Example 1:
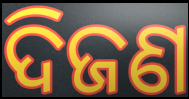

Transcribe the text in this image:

ଦିଜଣ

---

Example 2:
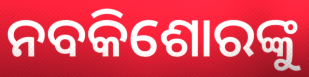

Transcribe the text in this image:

ନବକିଶୋରଙ୍କୁ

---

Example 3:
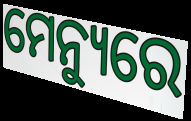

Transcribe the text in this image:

ମେନ୍ୟୁରେ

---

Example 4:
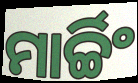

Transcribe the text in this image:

ମାର୍ଚ୍ଚିଂ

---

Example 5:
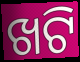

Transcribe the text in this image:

ଖଟି